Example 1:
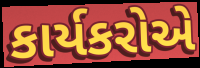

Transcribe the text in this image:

કાર્યકરોએ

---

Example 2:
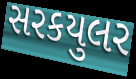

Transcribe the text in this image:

સરકયુલર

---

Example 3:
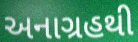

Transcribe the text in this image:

અનાગ્રહથી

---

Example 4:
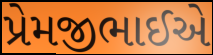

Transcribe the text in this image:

પ્રેમજીભાઈએ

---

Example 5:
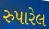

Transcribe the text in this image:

રુપારેલ